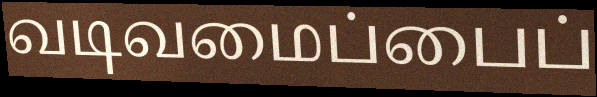
வடிவமைப்பைப்